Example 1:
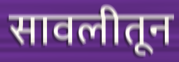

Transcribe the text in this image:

सावलीतून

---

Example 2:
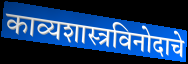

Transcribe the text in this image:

काव्यशास्त्रविनोदाचे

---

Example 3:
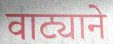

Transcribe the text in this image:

वाट्याने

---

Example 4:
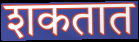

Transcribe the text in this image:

शकतात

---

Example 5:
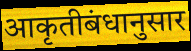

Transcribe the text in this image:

आकृतीबंधानुसार